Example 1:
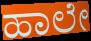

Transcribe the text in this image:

ಹಾಲೇ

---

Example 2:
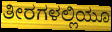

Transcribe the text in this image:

ತೀರಗಳಲ್ಲಿಯೂ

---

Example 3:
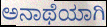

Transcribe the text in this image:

ಅನಾಥೆಯಾಗಿ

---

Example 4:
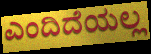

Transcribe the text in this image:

ಎಂದಿದೆಯಲ್ಲ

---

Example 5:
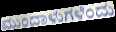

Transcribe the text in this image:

ಮುಂದಾಳುಗಳೆಂದು